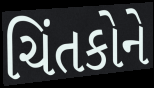
ચિંતકોને